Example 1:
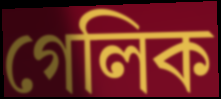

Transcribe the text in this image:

গেলিক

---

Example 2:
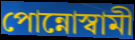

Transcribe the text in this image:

পোন্নোস্বামী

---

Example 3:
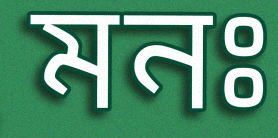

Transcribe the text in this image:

মনঃ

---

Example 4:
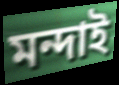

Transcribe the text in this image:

মন্দাই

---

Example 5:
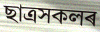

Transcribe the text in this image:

ছাত্ৰসকলৰ